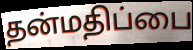
தன்மதிப்பை